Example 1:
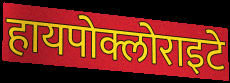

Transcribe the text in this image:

हायपोक्लोराइटे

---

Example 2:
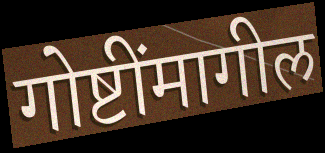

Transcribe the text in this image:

गोष्टींमागील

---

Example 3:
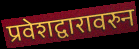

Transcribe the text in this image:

प्रवेशद्वारावरुन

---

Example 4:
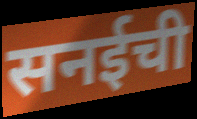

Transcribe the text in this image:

सनईची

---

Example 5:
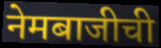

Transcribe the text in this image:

नेमबाजीची